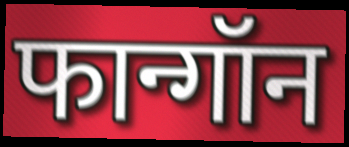
फान्गॉन